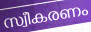
സ്വീകരണം